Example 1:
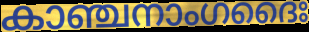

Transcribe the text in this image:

കാഞ്ചനാംഗദൈഃ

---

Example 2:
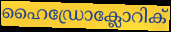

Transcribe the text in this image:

ഹൈഡ്രോക്ലോറിക്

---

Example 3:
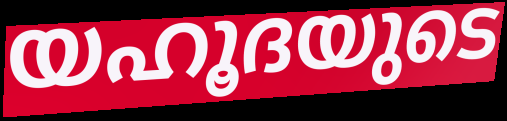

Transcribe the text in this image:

യഹൂദയുടെ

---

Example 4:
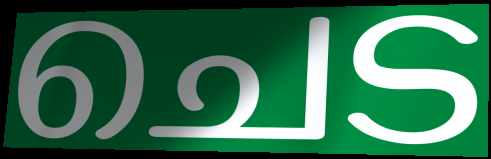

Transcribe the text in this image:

ചെട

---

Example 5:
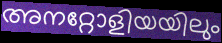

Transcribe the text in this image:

അനറ്റോളിയയിലും